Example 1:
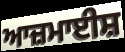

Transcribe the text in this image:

ਆਜ਼ਮਾਈਸ਼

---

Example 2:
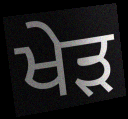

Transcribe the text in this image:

ਖੇੜ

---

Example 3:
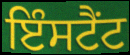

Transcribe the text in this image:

ਇੰਸਟੈਂਟ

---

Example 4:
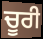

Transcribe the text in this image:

ਚੂਰੀ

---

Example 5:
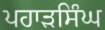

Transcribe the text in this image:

ਪਹਾੜਸਿੰਘ